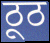
ठूठ